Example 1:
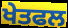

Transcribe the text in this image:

ਖੇਤਫਲ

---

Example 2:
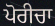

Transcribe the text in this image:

ਪੋਰੀਚਾ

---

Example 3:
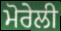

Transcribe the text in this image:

ਮੋਰੇਲੀ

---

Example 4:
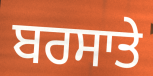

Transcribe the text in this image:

ਬਰਸਾਤੇ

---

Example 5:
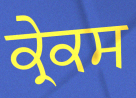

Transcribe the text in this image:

ਕ੍ਰੇਕਸ